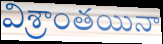
విశ్రాంతయినా